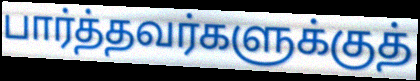
பார்த்தவர்களுக்குத்